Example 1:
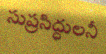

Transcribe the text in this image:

సుప్రసిద్ధులనీ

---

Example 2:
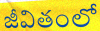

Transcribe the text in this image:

జీవితంలో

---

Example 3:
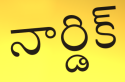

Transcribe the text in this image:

నార్డిక్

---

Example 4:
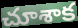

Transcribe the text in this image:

చూశాక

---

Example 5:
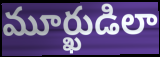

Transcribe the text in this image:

మూర్ఖుడిలా